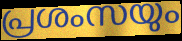
പ്രശംസയും